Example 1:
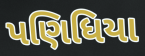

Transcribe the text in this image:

પણિધિયા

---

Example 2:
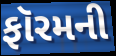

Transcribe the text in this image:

ફૉરમની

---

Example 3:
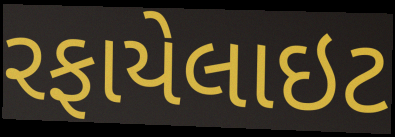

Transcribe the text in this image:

રફાયેલાઇટ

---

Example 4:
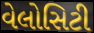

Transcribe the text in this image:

વેલોસિટી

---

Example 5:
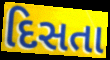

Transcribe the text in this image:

દિસતા